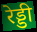
रेड्डी